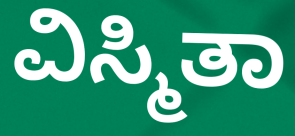
ವಿಸ್ಮಿತಾ